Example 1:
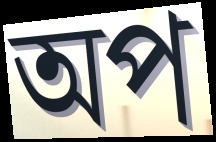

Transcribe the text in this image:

অপ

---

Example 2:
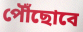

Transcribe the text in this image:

পৌঁছোবে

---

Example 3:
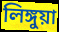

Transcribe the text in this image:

লিঙ্গুয়া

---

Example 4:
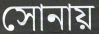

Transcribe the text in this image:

সোনায়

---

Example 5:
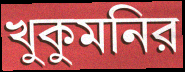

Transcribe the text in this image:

খুকুমনির